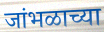
जांभळाच्या